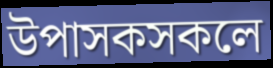
উপাসকসকলে